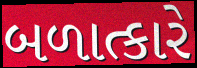
બળાત્કારે